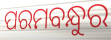
ପରମବନ୍ଧୁର